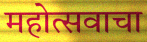
महोत्सवाचा